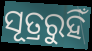
ସୂତ୍ରରୁହିଁ